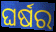
ଘର୍ଷର